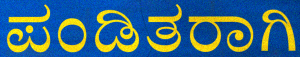
ಪಂಡಿತರಾಗಿ